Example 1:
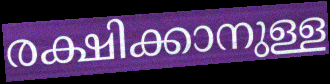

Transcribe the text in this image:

രക്ഷിക്കാനുള്ള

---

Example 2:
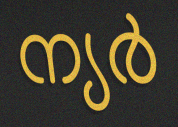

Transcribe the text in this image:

ന്യർ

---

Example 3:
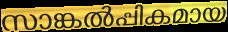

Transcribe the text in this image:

സാങ്കൽപ്പികമായ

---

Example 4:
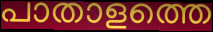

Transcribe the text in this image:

പാതാളത്തെ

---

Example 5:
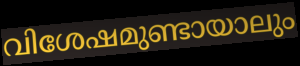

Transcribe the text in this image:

വിശേഷമുണ്ടായാലും